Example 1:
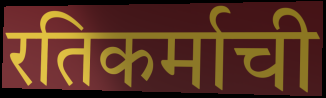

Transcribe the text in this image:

रतिकर्माची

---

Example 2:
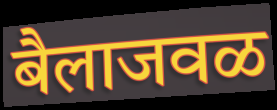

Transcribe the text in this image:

बैलाजवळ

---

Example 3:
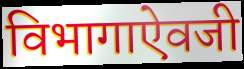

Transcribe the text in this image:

विभागाऐवजी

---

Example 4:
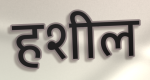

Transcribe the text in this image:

हशील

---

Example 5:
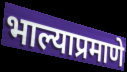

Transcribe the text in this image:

भाल्याप्रमाणे